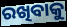
ରଖିବାକୁ